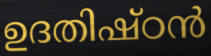
ഉദതിഷ്ഠൻ